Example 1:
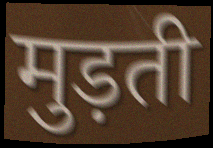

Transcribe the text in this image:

मुड़ती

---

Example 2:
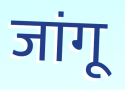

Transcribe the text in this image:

जांगू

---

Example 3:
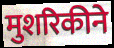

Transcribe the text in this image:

मुशरिकीने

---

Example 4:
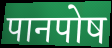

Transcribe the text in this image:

पानपोष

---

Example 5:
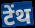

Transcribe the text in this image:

टेंथ